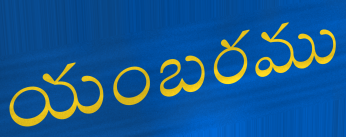
యంబరము